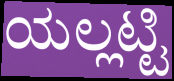
ಯಲ್ಲಟ್ಟಿ